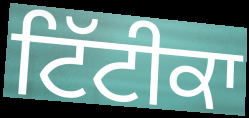
ਟਿੱਟੀਕਾ